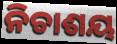
ନିଚାଶୟ